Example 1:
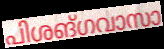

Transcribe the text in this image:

പിശങ്ഗവാസാ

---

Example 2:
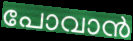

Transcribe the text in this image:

പോവാൻ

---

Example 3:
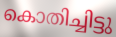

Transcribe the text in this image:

കൊതിച്ചിട്ടു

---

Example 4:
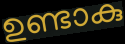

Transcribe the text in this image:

ഉണ്ടാകു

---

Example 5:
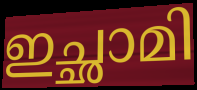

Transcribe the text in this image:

ഇച്ഛാമി